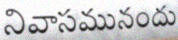
నివాసమునందు